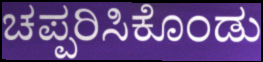
ಚಪ್ಪರಿಸಿಕೊಂಡು